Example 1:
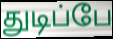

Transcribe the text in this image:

துடிப்பே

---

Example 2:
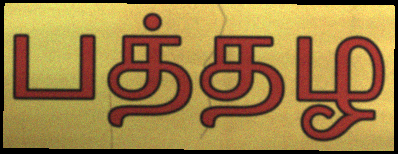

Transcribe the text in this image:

பத்தழ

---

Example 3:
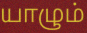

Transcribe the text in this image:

யாழும்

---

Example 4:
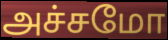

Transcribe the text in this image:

அச்சமோ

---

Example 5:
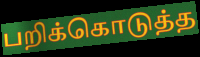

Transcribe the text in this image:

பறிக்கொடுத்த